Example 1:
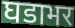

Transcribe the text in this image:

घडाभर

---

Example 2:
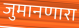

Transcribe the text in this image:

जुमानणारा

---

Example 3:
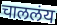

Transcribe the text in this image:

चाललंय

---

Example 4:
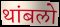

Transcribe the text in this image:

थांबलो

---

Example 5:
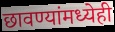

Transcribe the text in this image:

छावण्यांमध्येही